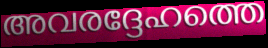
അവരദ്ദേഹത്തെ